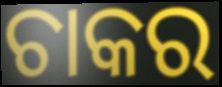
ଚାକର